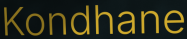
Kondhane